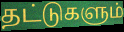
தட்டுகளும்